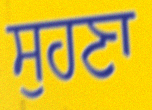
ਸੁਹਣਾ